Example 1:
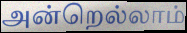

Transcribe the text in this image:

அன்றெல்லாம்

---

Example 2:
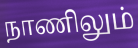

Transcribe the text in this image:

நாணிலும்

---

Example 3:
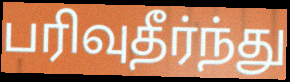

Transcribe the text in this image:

பரிவுதீர்ந்து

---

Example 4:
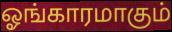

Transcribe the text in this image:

ஓங்காரமாகும்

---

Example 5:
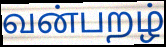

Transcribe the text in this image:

வன்பறழ்